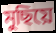
মুছিয়ে